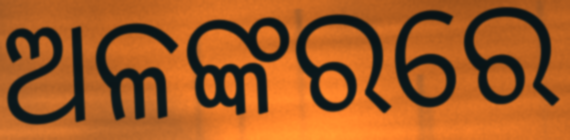
ଅଳଙ୍କରରେ